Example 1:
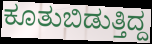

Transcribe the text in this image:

ಕೂತುಬಿಡುತ್ತಿದ್ದ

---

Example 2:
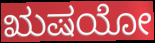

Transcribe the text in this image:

ಋಷಯೋ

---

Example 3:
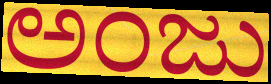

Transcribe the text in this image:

ಅಂಜು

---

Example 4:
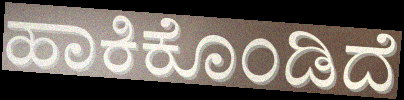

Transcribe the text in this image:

ಹಾಕಿಕೊಂಡಿದೆ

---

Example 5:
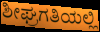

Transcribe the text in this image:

ಶೀಘ್ರಗತಿಯಲ್ಲಿ